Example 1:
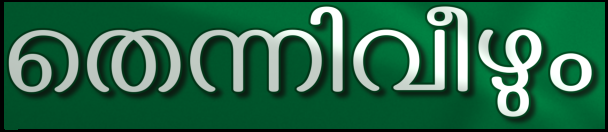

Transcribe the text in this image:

തെന്നിവീഴും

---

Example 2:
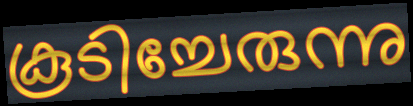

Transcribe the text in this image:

കൂടിച്ചേരുന്നു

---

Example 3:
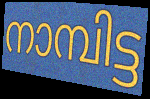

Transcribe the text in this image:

നാമ്പിട്ട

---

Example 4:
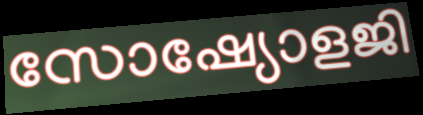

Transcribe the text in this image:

സോഷ്യോളജി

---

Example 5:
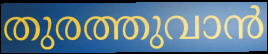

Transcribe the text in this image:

തുരത്തുവാൻ